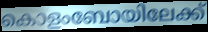
കൊളംബോയിലേക്ക്